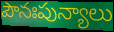
పౌనఃపున్యాలు